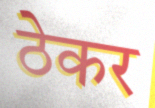
ठेकर